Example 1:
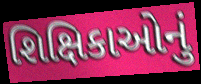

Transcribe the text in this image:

શિક્ષિકાઓનું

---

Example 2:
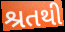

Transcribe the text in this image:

શ્રતથી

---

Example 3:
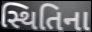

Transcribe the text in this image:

સ્થિતિના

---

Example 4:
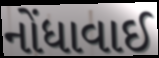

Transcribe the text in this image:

નોંધાવાઈ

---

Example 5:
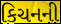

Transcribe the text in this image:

કિચનની